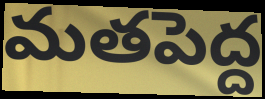
మతపెద్ద